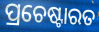
ପ୍ରଚେଷ୍ଟାରତ